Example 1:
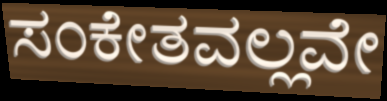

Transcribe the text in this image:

ಸಂಕೇತವಲ್ಲವೇ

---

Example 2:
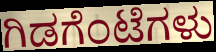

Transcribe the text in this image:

ಗಿಡಗೆಂಟೆಗಳು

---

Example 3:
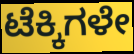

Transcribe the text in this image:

ಟೆಕ್ಕಿಗಳೇ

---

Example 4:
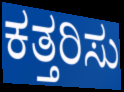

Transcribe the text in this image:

ಕತ್ತರಿಸು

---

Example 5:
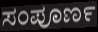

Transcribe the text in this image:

ಸಂಪೂರ್ಣ